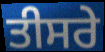
ਤੀਸਰੇ